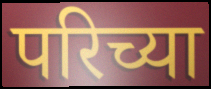
परिच्या